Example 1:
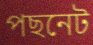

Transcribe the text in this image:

পছনেট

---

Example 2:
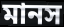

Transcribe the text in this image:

মানস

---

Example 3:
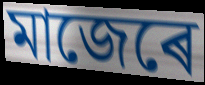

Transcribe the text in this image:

মাজেৰে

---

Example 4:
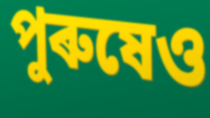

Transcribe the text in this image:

পুৰুষেও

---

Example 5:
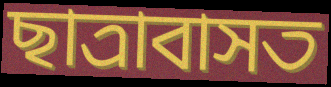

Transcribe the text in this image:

ছাত্ৰাবাসত